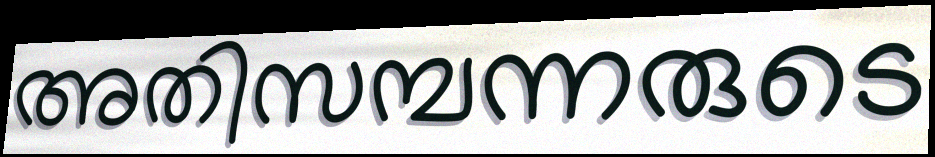
അതിസമ്പന്നരുടെ